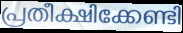
പ്രതീക്ഷിക്കേണ്ടി